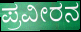
ಪ್ರವೀರನ